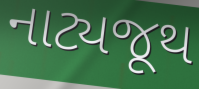
નાટ્યજૂથ